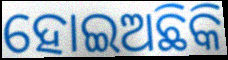
ହୋଇଅଛିକି